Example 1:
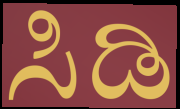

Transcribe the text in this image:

ಸಿಡಿ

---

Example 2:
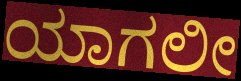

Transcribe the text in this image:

ಯಾಗಲೀ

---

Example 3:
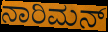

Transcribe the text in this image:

ನಾರಿಮನ್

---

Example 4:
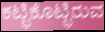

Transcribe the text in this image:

ಕಟ್ಟಿಕೊಟ್ಟಿರುವ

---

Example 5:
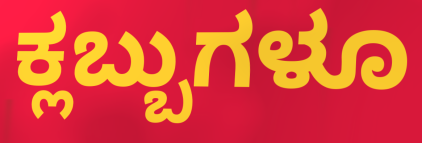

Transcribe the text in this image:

ಕ್ಲಬ್ಬುಗಳೂ